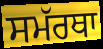
ਸਮੱਰਥਾ